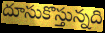
దూసుకొస్తున్నది